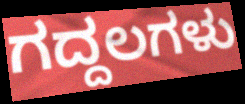
ಗದ್ದಲಗಳು